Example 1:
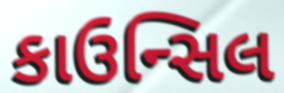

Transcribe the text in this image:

કાઉન્સિલ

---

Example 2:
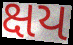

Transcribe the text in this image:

ક્ષય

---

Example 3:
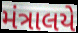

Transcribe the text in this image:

મંત્રાલયે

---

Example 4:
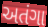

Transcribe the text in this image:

અતંગા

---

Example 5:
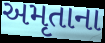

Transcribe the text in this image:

અમૃતાના